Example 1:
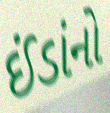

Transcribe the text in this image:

ઈંડાંનો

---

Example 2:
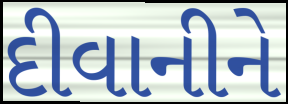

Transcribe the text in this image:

દીવાનીને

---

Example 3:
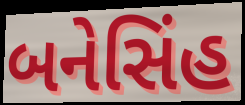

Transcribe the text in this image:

બનેસિંહ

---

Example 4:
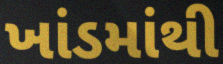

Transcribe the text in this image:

ખાંડમાંથી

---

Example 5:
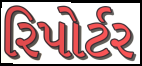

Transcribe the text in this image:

રિપોર્ટર